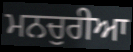
ਮਨਚੁਰੀਆ